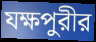
যক্ষপুরীর